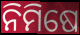
ନିମିଷେ